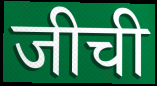
जीची